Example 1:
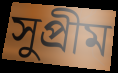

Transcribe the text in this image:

সুপ্রীম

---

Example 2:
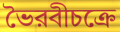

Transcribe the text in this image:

ভৈরবীচক্রে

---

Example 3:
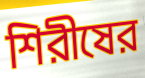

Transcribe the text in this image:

শিরীষের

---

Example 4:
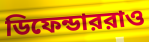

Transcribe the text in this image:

ডিফেন্ডাররাও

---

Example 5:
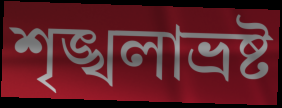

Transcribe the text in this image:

শৃঙ্খলাভ্রষ্ট